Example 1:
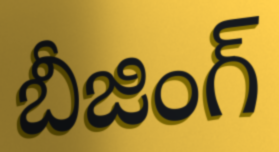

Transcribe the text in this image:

బీజింగ్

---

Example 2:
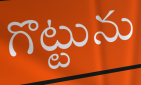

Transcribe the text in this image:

గొట్టును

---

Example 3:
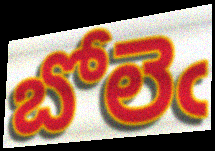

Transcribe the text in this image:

బోలెఁ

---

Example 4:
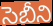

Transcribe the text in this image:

సెబీని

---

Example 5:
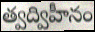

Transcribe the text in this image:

త్వద్విహీనం